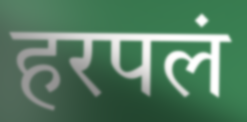
हरपलं